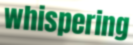
whispering